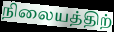
நிலையத்திற்